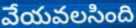
వేయవలసింది